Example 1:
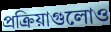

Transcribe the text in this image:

প্রক্রিয়াগুলোও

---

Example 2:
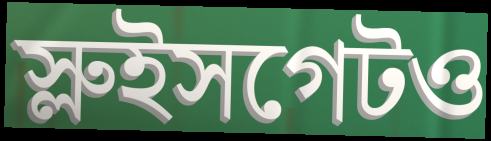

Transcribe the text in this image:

স্লুইসগেটও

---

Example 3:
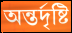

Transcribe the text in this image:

অন্তর্দৃষ্টি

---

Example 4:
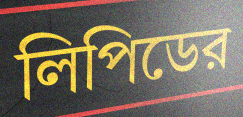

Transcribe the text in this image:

লিপিডের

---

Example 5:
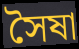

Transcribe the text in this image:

সৈষা